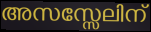
അസസ്സേലിന്